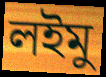
লইমু